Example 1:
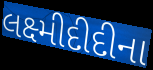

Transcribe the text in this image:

લક્ષ્મીદીદીના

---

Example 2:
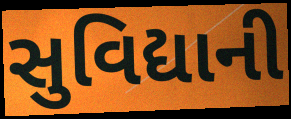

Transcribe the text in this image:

સુવિદ્યાની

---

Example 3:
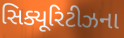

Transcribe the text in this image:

સિક્યૂરિટીઝના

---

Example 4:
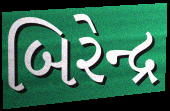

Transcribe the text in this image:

બિરેન્દ્ર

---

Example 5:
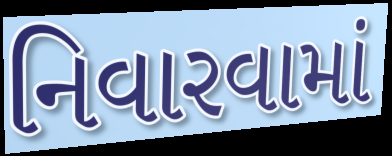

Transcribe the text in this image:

નિવારવામાં